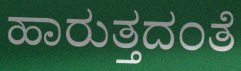
ಹಾರುತ್ತದಂತೆ